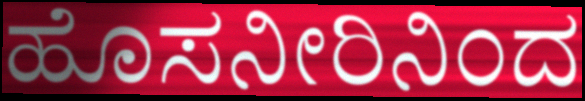
ಹೊಸನೀರಿನಿಂದ